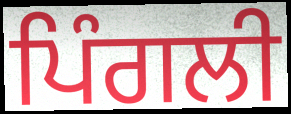
ਪਿੰਗਲੀ